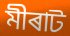
মীৰাট